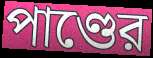
পাণ্ডের